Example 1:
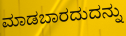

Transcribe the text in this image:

ಮಾಡಬಾರದುದನ್ನು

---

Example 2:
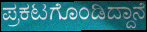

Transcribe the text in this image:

ಪ್ರಕಟಗೊಂಡಿದ್ದಾನೆ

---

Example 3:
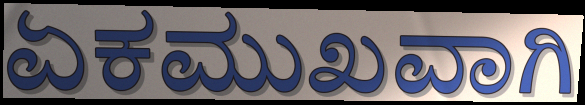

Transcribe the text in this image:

ಏಕಮುಖವಾಗಿ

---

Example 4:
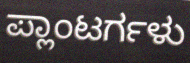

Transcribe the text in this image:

ಪ್ಲಾಂಟರ್ಗಳು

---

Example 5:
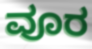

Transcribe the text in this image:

ವೂರ